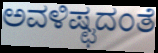
ಅವಳಿಷ್ಟದಂತೆ